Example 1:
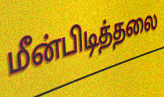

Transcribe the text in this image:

மீன்பிடித்தலை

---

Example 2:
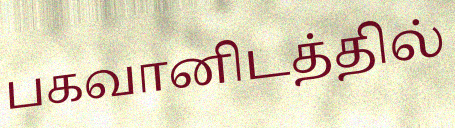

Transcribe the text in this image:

பகவானிடத்தில்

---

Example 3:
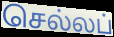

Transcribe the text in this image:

செல்லப்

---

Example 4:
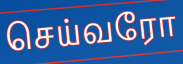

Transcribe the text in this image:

செய்வரோ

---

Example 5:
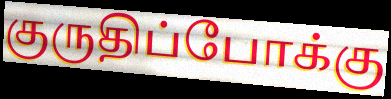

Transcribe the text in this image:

குருதிப்போக்கு